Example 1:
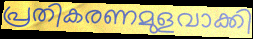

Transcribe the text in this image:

പ്രതികരണമുളവാക്കി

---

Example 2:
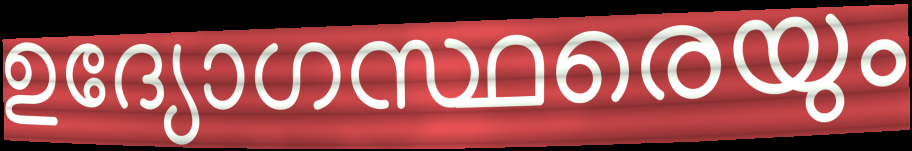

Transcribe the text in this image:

ഉദ്യോഗസ്ഥരെയും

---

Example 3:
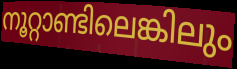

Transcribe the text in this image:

നൂറ്റാണ്ടിലെങ്കിലും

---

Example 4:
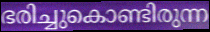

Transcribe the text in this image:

ഭരിച്ചുകൊണ്ടിരുന്ന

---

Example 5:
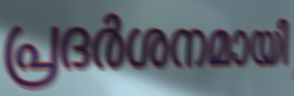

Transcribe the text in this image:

പ്രദർശനമായി